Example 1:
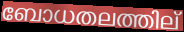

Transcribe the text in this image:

ബോധതലത്തില്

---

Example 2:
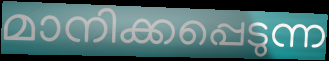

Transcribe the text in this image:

മാനിക്കപ്പെടുന്ന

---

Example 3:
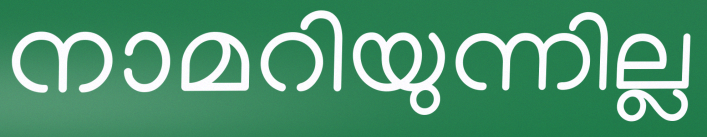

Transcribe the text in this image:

നാമറിയുന്നില്ല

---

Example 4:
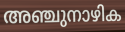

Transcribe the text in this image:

അഞ്ചുനാഴിക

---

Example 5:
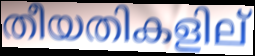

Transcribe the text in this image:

തീയതികളില്